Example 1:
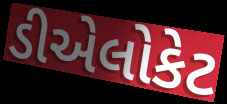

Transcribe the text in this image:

ડીએલોકેટ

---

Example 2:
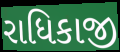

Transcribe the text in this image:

રાધિકાજી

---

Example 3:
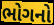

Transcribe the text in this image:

ભોગનો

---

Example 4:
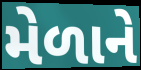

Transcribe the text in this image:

મેળાને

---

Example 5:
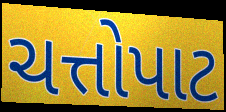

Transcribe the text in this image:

ચત્તોપાટ